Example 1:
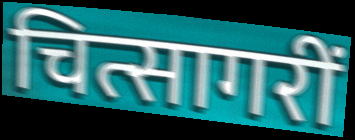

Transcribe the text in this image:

चित्सागरीं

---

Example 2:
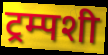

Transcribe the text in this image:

ट्रम्पशी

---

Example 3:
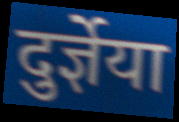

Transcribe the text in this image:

दुर्ज्ञेया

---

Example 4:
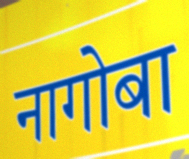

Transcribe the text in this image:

नागोबा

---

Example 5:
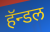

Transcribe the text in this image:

हॅन्डल